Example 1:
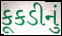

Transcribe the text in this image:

કૂકડીનું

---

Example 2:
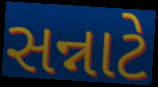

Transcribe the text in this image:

સન્નાટે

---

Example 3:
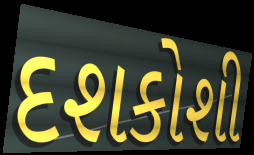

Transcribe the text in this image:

દશકોશી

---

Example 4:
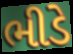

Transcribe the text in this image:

ભીડે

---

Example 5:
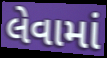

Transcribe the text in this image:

લેવામાં